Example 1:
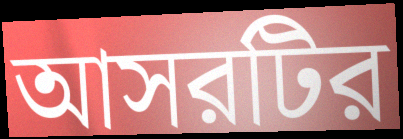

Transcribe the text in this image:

আসরটির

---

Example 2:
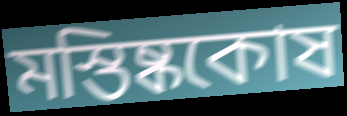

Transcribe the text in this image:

মস্তিষ্ককোষ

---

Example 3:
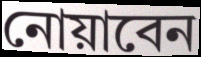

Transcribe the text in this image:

নোয়াবেন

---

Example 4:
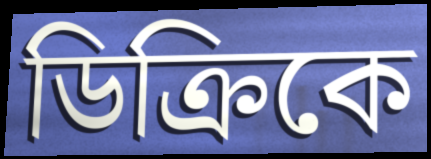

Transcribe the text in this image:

ডিক্রিকে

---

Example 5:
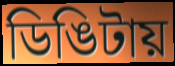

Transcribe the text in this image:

ডিঙিটায়